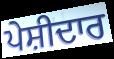
ਪੇਸ਼ੀਦਾਰ